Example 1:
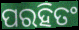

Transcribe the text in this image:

ପରହିତଂ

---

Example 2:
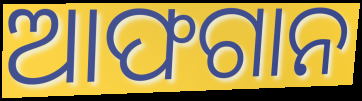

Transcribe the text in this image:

ଆଫଗାନ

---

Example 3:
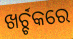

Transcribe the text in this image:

ଖର୍ଚ୍ଚକରେ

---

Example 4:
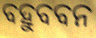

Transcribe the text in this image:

ବହୁବବନ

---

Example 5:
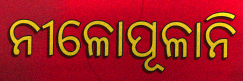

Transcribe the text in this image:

ନୀଳୋପୂଳାନି